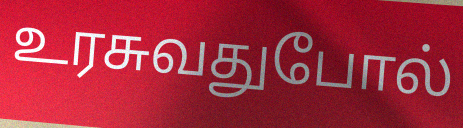
உரசுவதுபோல்